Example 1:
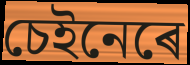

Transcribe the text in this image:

চেইনেৰে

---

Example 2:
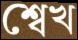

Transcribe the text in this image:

শ্বেখ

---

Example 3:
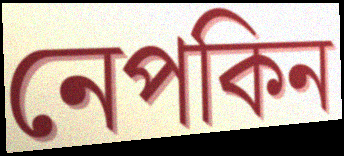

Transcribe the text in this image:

নেপকিন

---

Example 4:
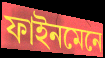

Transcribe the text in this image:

ফাইনমেনে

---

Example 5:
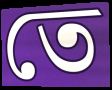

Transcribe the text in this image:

তে